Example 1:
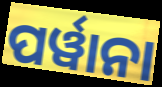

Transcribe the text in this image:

ପର୍ୱାନା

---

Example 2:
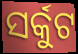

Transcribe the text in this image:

ସର୍କୁଟ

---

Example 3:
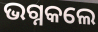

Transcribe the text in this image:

ଭଗ୍ନକଲେ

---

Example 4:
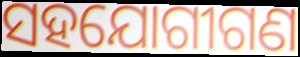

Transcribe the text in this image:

ସହଯୋଗୀଗଣ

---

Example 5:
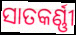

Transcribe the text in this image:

ସାତକର୍ଣ୍ଣୀ